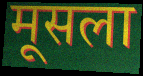
मूसला